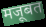
मजूबत